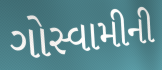
ગોસ્વામીની